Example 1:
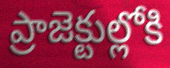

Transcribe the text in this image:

ప్రాజెక్టుల్లోకి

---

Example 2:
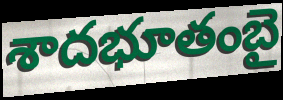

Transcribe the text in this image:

శాదభూతంబై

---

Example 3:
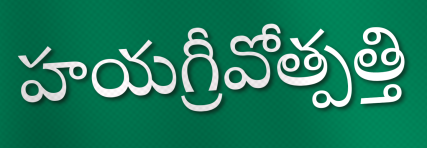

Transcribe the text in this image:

హయగ్రీవోత్పత్తి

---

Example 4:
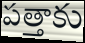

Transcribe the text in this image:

పత్తాకు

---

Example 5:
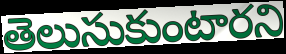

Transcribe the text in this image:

తెలుసుకుంటారని